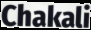
Chakali